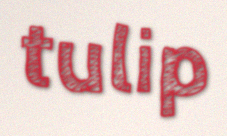
tulip